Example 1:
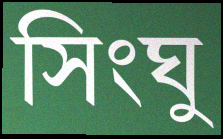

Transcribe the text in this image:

সিংঘু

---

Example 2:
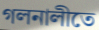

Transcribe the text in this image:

গলনালীতে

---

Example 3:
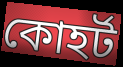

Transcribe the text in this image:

কোহর্ট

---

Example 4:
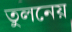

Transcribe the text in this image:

তুলনেয়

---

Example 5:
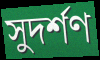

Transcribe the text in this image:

সুদর্শণ